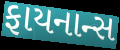
ફાયનાન્સ